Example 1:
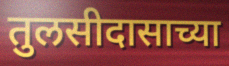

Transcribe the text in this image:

तुलसीदासाच्या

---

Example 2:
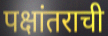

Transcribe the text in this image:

पक्षांतराची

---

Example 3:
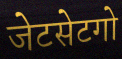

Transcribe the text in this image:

जेटसेटगो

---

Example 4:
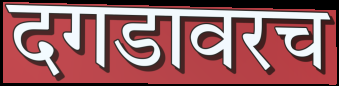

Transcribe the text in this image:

दगडावरच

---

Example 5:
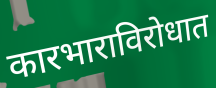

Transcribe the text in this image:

कारभाराविरोधात